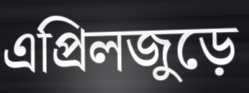
এপ্রিলজুড়ে